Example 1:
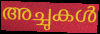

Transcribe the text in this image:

അച്ചുകൾ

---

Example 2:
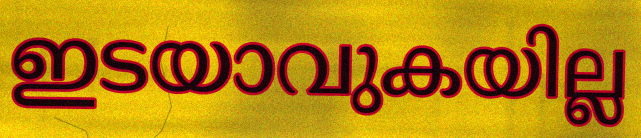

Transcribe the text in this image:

ഇടയാവുകയില്ല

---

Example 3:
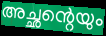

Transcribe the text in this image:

അച്ഛന്റെയും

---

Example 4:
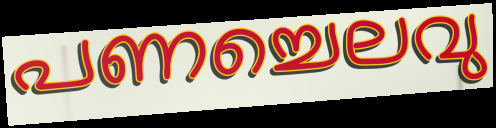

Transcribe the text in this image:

പണച്ചെലവു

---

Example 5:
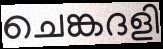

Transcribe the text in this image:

ചെങ്കദളി